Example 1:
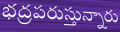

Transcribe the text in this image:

భద్రపరుస్తున్నారు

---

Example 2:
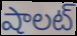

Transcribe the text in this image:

షాలట్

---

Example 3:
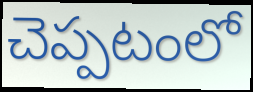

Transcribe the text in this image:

చెప్పటంలో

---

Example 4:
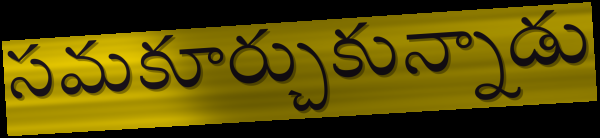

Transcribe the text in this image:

సమకూర్చుకున్నాడు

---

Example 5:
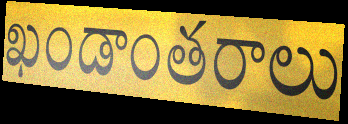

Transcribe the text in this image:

ఖండాంతరాలు